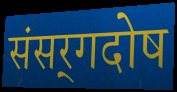
संसर्गदोष